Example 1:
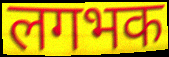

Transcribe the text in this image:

लगभक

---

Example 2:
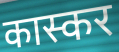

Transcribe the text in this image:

कास्कर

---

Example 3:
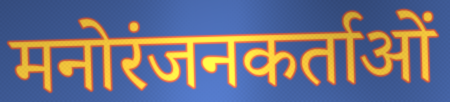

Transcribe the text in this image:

मनोरंजनकर्ताओं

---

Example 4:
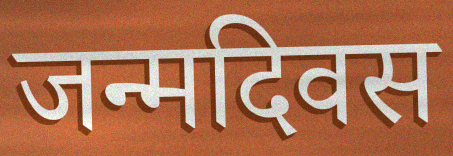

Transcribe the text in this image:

जन्मदिवस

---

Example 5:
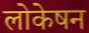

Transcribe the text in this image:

लोकेषन